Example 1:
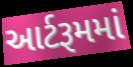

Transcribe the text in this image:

આર્ટરૂમમાં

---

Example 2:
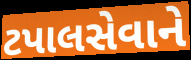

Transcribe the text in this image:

ટપાલસેવાને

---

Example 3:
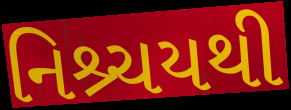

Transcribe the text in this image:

નિશ્ર્ચયથી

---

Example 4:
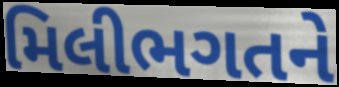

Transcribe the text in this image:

મિલીભગતને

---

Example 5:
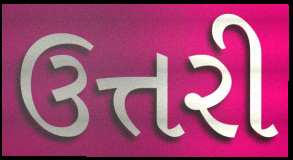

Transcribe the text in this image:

ઉત્તરી